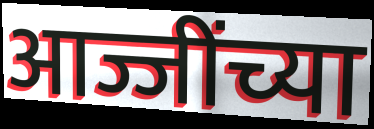
आज्जींच्या